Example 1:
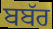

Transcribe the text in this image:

ਬਬੱਰ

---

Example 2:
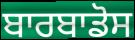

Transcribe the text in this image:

ਬਾਰਬਾਡੋਸ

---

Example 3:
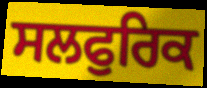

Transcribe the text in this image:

ਸਲਫੁਰਿਕ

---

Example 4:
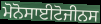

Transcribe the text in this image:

ਮੋਨੋਸਾਈਟੋਜੀਨਸ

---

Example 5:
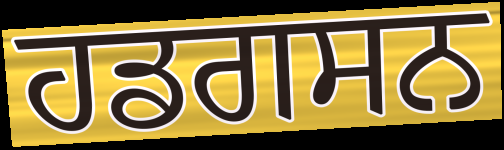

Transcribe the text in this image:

ਹਡਗਸਨ